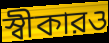
স্বীকারও